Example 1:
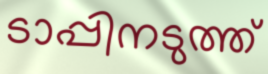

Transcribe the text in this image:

ടാപ്പിനടുത്ത്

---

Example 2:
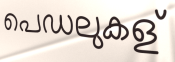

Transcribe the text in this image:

പെഡലുകള്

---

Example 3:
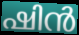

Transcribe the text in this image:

ഷിൻ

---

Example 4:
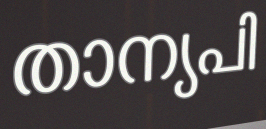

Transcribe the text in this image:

താന്യപി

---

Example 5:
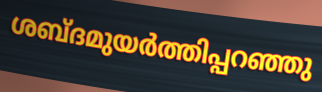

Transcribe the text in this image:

ശബ്ദമുയർത്തിപ്പറഞ്ഞു